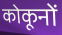
कोकूनों